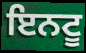
ਇਨਟੂ